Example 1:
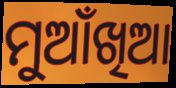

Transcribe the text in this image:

ମୁଆଁଖିଆ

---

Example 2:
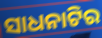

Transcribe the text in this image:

ସାଧନାଟିର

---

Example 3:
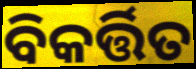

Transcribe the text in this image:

ବିକର୍ତ୍ତିତ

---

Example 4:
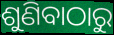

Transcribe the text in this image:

ଶୁଣିବାଠାରୁ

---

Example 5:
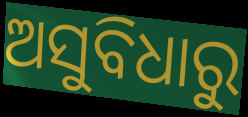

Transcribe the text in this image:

ଅସୁବିଧାରୁ